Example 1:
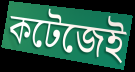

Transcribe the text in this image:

কটেজেই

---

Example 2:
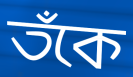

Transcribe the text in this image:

তঁকে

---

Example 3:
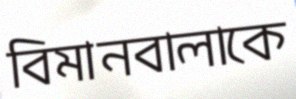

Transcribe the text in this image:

বিমানবালাকে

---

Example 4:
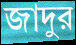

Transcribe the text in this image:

জাদুর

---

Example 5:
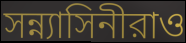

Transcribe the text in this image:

সন্ন্যাসিনীরাও